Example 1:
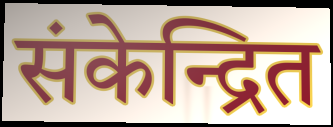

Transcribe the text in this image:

संकेन्द्रित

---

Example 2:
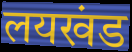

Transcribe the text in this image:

लयखंड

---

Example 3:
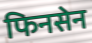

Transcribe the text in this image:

फिनसेन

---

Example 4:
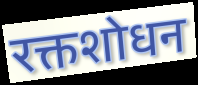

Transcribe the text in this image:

रक्तशोधन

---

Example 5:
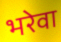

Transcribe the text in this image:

भरेवा